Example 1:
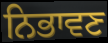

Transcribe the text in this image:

ਨਿਭਾਵਣ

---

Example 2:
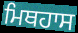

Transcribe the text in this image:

ਮਿਥਹਾਸ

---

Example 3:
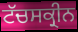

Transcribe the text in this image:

ਟੱਚਸਕ੍ਰੀਨ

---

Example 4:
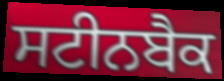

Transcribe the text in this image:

ਸਟੀਨਬੈਕ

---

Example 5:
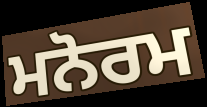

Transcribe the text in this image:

ਮਨੋਰਮ